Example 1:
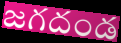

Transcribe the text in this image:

జగదండ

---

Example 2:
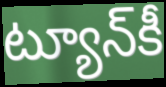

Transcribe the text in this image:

ట్యూన్‌కీ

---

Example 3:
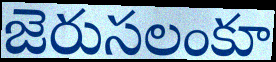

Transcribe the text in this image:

జెరుసలంకూ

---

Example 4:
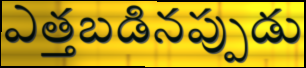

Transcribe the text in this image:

ఎత్తబడినప్పుడు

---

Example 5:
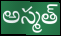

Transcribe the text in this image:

అస్మత్